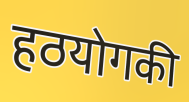
हठयोगकी